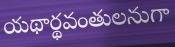
యథార్థవంతులనుగా